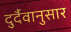
दुर्दैवानुसार